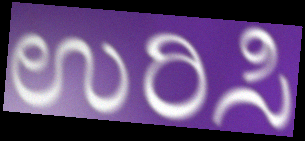
ಉರಿಸಿ